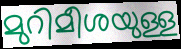
മുറിമീശയുള്ള